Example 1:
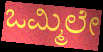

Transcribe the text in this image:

ಒಮ್ಮಿಲೇ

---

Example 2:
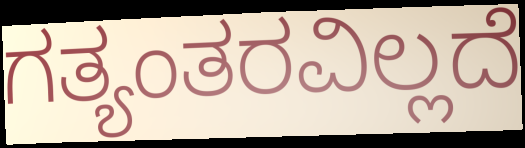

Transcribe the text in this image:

ಗತ್ಯಂತರವಿಲ್ಲದೆ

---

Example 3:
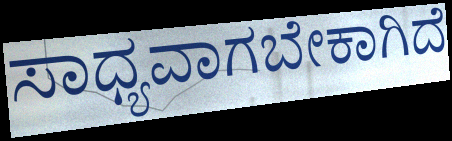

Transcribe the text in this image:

ಸಾಧ್ಯವಾಗಬೇಕಾಗಿದೆ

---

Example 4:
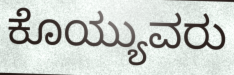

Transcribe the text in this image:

ಕೊಯ್ಯುವರು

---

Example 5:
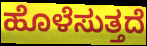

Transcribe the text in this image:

ಹೊಳೆಸುತ್ತದೆ